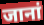
जानां